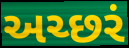
અચ્છરં